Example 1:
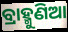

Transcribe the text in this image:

ବ୍ରାହ୍ମୁଣିଆ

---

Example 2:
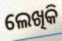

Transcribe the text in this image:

ଲେଖିକି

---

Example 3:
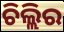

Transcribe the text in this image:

ଚିଲ୍ଲିର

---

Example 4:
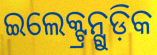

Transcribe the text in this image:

ଇଲେକ୍ଟ୍ରନ୍ଗୁଡ଼ିକ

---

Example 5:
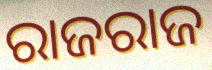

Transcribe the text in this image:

ରାଜରାଜ